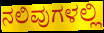
ನಲಿವುಗಳಲ್ಲಿ